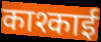
काश्काई